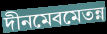
দীনমেবমেতন্ন